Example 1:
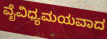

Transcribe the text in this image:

ವೈವಿಧ್ಯಮಯವಾದ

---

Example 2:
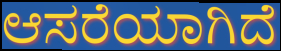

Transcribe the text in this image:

ಆಸರೆಯಾಗಿದೆ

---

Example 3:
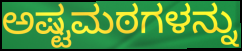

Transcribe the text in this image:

ಅಷ್ಟಮಠಗಳನ್ನು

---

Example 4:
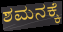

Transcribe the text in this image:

ಶಮನಕ್ಕೆ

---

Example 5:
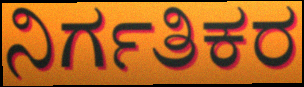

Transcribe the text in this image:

ನಿರ್ಗತಿಕರ